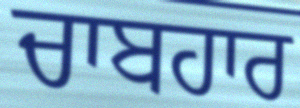
ਚਾਬਹਾਰ